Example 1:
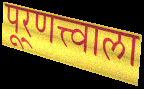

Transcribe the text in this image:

पूर्णत्त्वाला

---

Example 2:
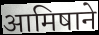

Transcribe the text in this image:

आमिषाने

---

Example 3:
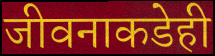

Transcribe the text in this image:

जीवनाकडेही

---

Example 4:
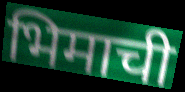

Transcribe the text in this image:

भिमाची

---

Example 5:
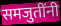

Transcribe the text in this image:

समजुतींनी